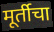
मूर्तीचा